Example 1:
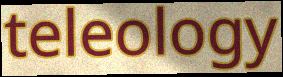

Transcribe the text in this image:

teleology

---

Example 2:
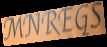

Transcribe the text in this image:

MNREGS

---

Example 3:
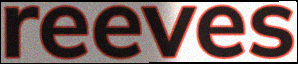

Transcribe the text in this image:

reeves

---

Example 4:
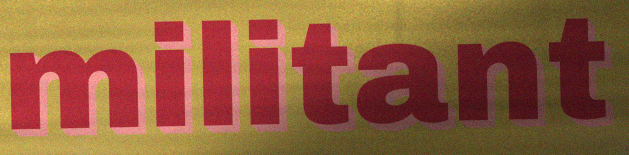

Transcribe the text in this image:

militant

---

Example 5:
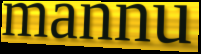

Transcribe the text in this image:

mannu